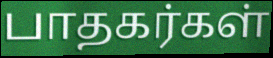
பாதகர்கள்